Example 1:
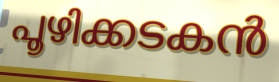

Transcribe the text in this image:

പൂഴിക്കടകൻ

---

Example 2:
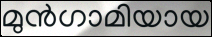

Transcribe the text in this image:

മുൻഗാമിയായ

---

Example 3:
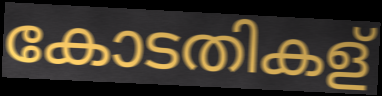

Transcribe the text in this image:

കോടതികള്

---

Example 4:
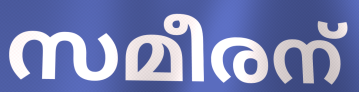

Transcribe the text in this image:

സമീരന്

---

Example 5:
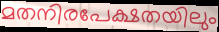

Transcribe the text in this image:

മതനിരപേക്ഷതയിലും